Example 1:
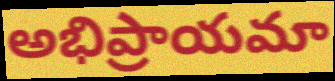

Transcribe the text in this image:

అభిప్రాయమా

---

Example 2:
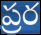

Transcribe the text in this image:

ప్రర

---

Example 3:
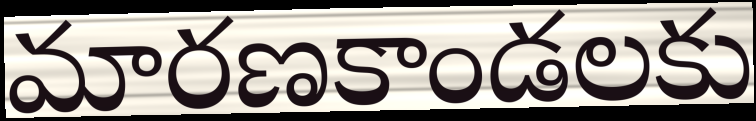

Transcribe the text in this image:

మారణకాండలకు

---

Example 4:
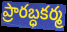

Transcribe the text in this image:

ప్రారబ్ధకర్మ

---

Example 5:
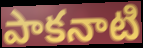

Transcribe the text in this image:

పాకనాటి